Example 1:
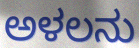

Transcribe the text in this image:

ಅಳಲನು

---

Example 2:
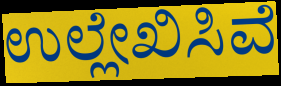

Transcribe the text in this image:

ಉಲ್ಲೇಖಿಸಿವೆ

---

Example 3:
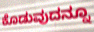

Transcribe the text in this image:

ಕೊಡುವುದನ್ನೂ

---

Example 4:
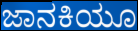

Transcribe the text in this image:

ಜಾನಕಿಯೂ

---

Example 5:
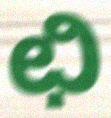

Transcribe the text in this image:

ಛಿ